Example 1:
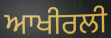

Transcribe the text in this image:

ਆਖੀਰਲੀ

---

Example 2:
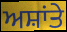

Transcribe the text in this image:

ਅਸ਼ਾਂਤੇ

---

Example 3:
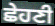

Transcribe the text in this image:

ਛੇਹਣੀ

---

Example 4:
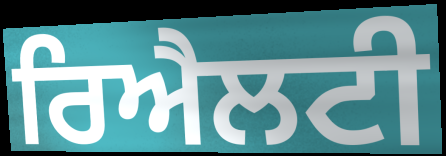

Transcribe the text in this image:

ਰਿਐਲਟੀ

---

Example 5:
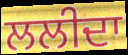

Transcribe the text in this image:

ਲਲੀਦਾ